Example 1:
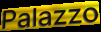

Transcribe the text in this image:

Palazzo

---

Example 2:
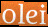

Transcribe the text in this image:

olei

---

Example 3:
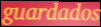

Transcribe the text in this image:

guardados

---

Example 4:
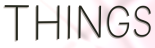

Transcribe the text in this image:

THINGS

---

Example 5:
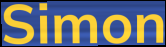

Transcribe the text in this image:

Simon